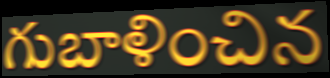
గుబాళించిన